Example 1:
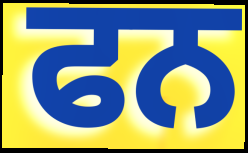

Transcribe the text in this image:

ਫਨ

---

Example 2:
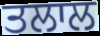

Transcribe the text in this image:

ਤਲਾਲ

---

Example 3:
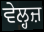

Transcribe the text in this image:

ਵੇਲ੍ਹਜ਼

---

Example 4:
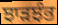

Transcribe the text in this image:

ਝਾੜਝੰਭ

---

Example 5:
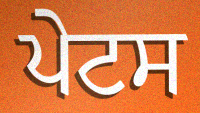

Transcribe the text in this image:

ਪੇਟਸ